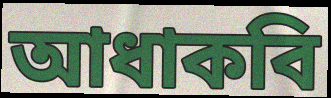
আধাকবি